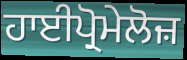
ਹਾਈਪ੍ਰੋਮੇਲੋਜ਼